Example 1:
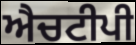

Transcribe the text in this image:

ਐਚਟੀਪੀ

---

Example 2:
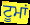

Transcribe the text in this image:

ਟੂਮਾਂ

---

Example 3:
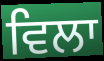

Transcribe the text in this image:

ਵਿਲਾ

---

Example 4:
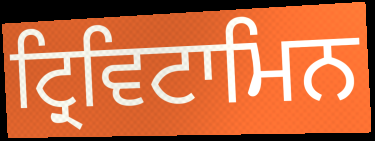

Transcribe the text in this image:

ਟ੍ਰਿਵਿਟਾਮਿਨ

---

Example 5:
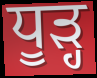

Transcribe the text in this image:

ਧੂੜ੍ਹ